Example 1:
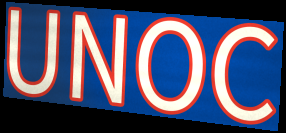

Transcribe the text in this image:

UNOC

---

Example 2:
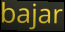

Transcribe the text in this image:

bajar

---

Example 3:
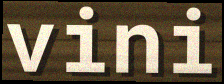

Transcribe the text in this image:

vini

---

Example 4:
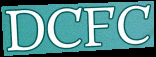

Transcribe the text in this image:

DCFC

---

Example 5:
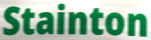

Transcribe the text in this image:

Stainton